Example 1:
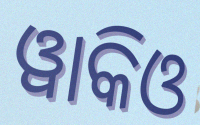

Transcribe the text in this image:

ୱାକିଓ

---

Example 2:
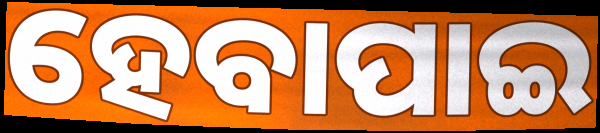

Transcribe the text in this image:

ହେବାପାଇ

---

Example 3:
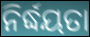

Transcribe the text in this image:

ନିର୍ଦ୍ଧୟତା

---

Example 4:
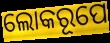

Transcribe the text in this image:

ଲୋକରୂପେ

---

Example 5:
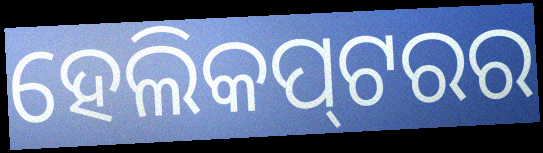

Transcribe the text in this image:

ହେଲିକପ୍‌ଟରର